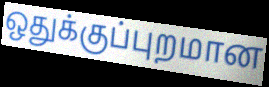
ஒதுக்குப்புறமான